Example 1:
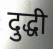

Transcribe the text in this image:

दुद्धी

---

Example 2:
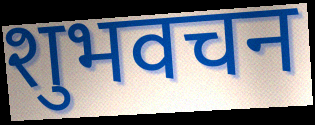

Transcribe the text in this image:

शुभवचन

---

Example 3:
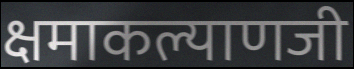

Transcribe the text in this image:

क्षमाकल्याणजी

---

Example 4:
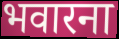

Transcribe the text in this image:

भवारना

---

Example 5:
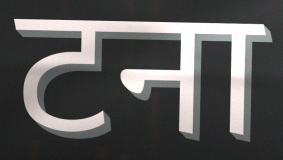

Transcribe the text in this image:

टना